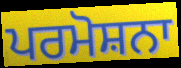
ਪਰਮੋਸ਼ਨਾ